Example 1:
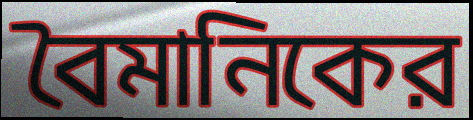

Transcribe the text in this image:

বৈমানিকের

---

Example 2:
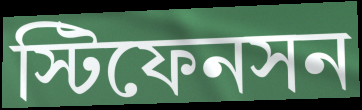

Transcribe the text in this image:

স্টিফেনসন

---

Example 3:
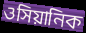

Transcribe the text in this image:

ওসিয়ানিক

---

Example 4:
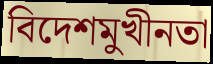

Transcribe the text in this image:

বিদেশমুখীনতা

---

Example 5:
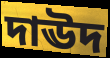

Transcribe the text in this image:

দাঊদ